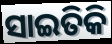
ସାଇତିକି